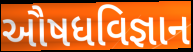
ઔષધવિજ્ઞાન